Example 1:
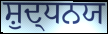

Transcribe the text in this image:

ਸ਼ੁਦ੍ਧਨਯ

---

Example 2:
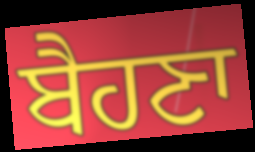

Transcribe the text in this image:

ਬੈਹਣਾ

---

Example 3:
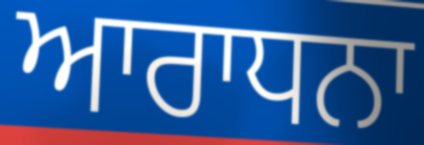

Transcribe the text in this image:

ਆਰਾਧਨਾ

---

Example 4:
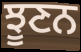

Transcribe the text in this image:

ਝੂਣਨ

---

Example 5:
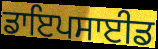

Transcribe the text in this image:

ਡਾਇਪਸਾਈਡ